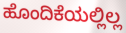
ಹೊಂದಿಕೆಯಲ್ಲಿಲ್ಲ